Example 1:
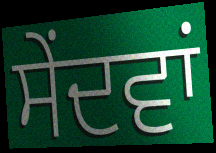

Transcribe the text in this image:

ਸੇਂਦਵਾਂ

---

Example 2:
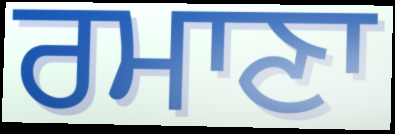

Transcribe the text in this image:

ਰਮਾਣਾ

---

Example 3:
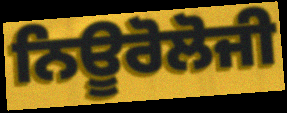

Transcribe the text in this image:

ਨਿਊਰੋਲੋਜੀ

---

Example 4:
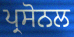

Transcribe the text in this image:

ਪ੍ਰਸੋਨਲ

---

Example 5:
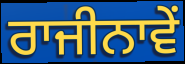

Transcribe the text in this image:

ਰਾਜੀਨਾਵੇਂ